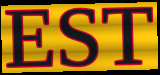
EST